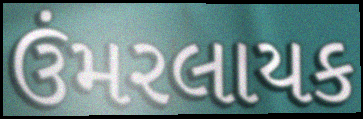
ઉંમરલાયક